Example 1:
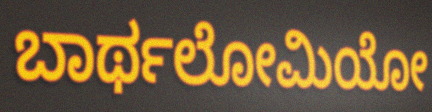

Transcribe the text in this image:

ಬಾರ್ಥಲೋಮಿಯೋ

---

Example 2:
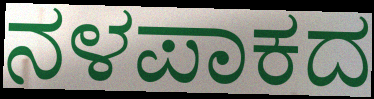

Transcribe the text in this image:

ನಳಪಾಕದ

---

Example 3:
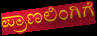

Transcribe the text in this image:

ಪ್ರಾಣಲಿಂಗಿಗೆ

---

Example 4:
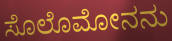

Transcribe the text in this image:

ಸೊಲೊಮೋನನು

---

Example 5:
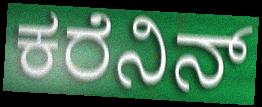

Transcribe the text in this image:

ಕರೆನಿನ್